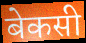
बेकसी